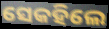
ସେକହିଲେ